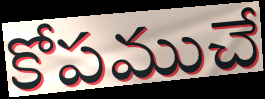
కోపముచే